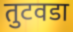
तुटवडा